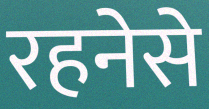
रहनेसे